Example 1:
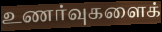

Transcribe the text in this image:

உணர்வுகளைக்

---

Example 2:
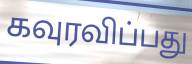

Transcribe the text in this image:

கவுரவிப்பது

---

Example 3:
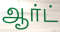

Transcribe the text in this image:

ஆர்ட்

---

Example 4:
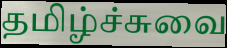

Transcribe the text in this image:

தமிழ்ச்சுவை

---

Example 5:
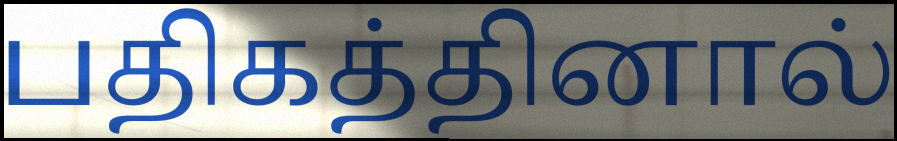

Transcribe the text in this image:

பதிகத்தினால்